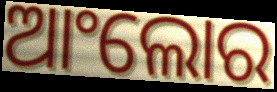
ଆଂଲୋର